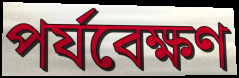
পৰ্যবেক্ষণ